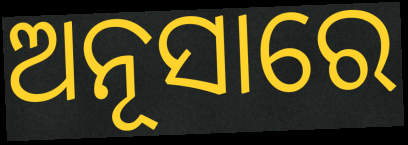
ଅନୂସାରେ